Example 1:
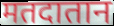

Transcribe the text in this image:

मतदातान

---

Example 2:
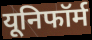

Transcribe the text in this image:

यूनिफॉर्म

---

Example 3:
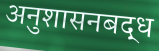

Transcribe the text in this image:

अनुशासनबद्ध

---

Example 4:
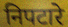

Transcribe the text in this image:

निपटारे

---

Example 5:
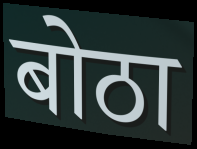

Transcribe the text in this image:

बोठा